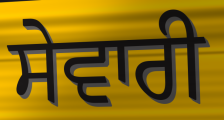
ਸੇਵਾਰੀ